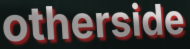
otherside